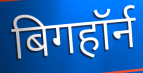
बिगहॉर्न